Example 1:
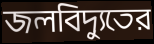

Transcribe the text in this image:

জলবিদ্যুতের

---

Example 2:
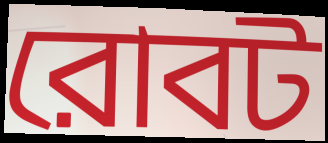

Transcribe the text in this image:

রোবট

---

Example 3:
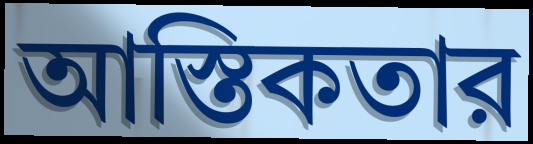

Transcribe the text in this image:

আস্তিকতার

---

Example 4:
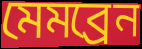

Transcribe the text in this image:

মেমব্রেন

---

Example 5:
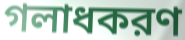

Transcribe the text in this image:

গলাধকরণ